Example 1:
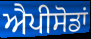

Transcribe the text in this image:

ਐਪੀਸੋਡਾਂ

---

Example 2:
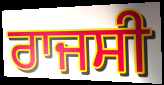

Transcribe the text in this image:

ਰਾਜਸੀ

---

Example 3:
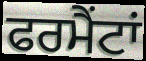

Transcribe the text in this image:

ਫਰਮੈਂਟਾਂ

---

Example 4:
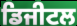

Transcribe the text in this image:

ਡਿਜੀਟਲ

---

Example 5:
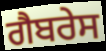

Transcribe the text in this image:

ਗੈਬਰੇਸ